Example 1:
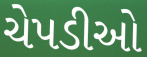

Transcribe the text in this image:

ચેપડીઓ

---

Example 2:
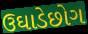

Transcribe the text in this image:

ઉઘાડેછોગ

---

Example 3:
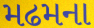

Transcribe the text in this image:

મઢમના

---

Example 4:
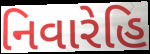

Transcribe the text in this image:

નિવારેહિ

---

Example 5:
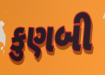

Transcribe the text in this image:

કુણબી